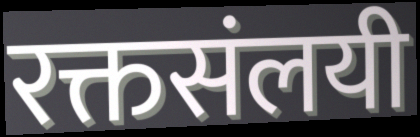
रक्तसंलयी